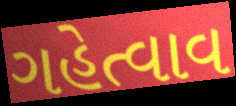
ગહેત્વાવ